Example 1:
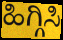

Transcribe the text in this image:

ಹಿಗ್ಗಿಸಿ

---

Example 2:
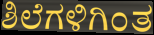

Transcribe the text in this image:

ಶಿಲೆಗಳಿಗಿಂತ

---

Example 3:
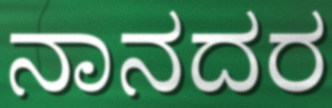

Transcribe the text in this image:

ನಾನದರ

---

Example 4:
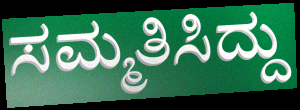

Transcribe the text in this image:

ಸಮ್ಮತಿಸಿದ್ದು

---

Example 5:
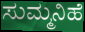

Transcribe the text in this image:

ಸುಮ್ಮನಿಹೆ